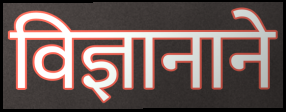
विज्ञानाने